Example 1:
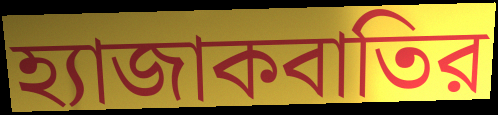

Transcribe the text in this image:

হ্যাজাকবাতির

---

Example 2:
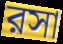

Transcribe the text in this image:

রসা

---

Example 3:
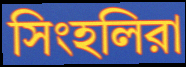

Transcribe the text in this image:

সিংহলিরা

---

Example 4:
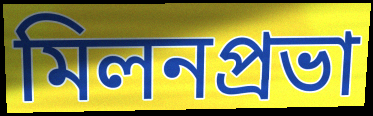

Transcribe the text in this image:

মিলনপ্রভা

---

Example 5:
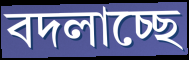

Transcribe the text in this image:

বদলাচ্ছে